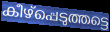
കീഴ്പ്പെടുത്തട്ടെ